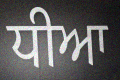
ਧੀਆ